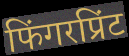
फिंगरप्रिंट